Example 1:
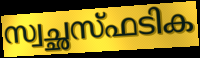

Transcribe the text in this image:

സ്വച്ഛസ്ഫടിക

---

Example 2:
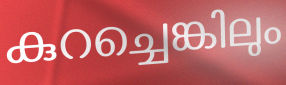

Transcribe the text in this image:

കുറച്ചെങ്കിലും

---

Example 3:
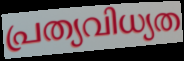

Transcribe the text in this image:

പ്രത്യവിധ്യത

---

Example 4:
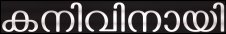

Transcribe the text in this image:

കനിവിനായി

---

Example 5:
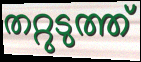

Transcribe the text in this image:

തറ്റുടുത്ത്